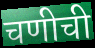
चणीची